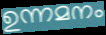
ഉന്നമനം